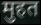
मुहत